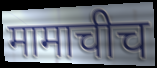
मामाचीच